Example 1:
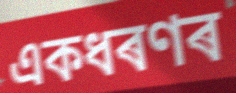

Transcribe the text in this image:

একধৰণৰ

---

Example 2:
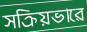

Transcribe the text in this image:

সক্ৰিয়ভাৱে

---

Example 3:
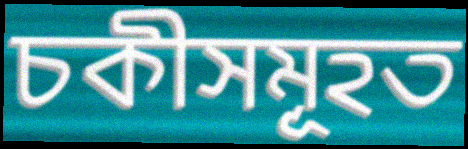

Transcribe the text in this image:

চকীসমূহত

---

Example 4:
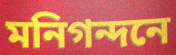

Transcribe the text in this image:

মনিগন্দনে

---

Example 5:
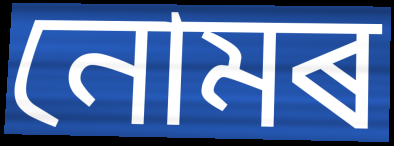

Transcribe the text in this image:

নোমৰ